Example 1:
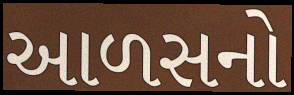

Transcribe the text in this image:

આળસનો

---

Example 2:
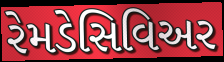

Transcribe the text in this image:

રેમડેસિવિઅર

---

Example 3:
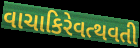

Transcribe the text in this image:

વાચાકિરેવત્થવતી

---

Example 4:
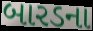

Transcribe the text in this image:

બારડના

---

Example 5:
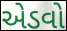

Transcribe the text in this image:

એડવો